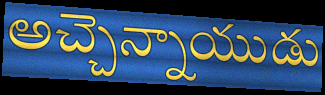
అచ్చెన్నాయుడు